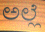
ಅಲ್ಲೆ